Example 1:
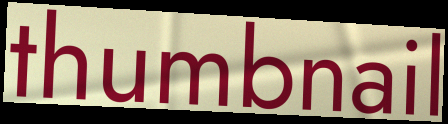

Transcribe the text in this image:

thumbnail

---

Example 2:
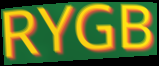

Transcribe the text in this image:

RYGB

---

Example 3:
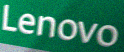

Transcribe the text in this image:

Lenovo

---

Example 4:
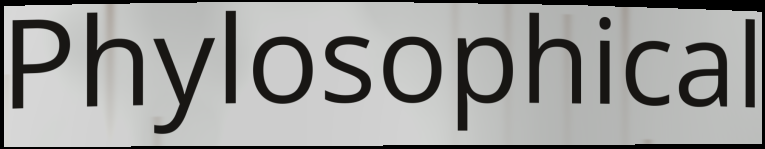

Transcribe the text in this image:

Phylosophical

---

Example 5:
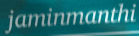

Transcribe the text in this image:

jaminmanthi